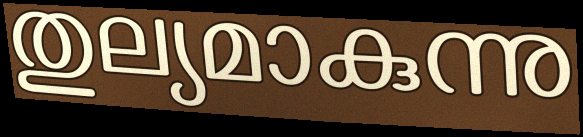
തുല്യമാകുന്നു